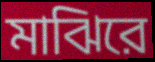
মাঝিরে